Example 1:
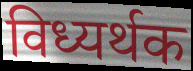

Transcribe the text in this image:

विध्यर्थक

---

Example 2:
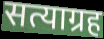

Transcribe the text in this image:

सत्याग्रह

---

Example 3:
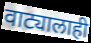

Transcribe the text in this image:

वाट्यालाही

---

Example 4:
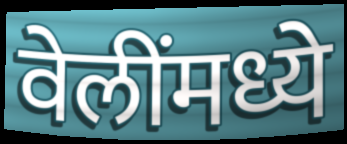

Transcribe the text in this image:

वेलींमध्ये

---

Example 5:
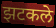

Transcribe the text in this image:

झटकले